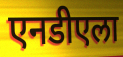
एनडीएला